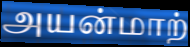
அயன்மாற்